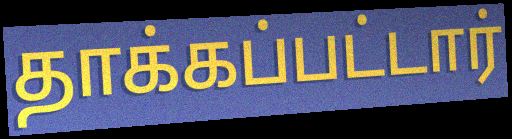
தாக்கப்பட்டார்